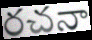
రచనా